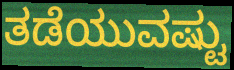
ತಡೆಯುವಷ್ಟು